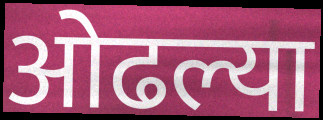
ओढल्या